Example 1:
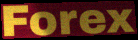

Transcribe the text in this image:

Forex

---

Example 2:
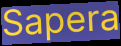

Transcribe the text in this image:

Sapera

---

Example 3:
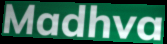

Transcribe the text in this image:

Madhva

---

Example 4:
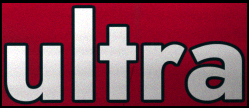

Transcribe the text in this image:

ultra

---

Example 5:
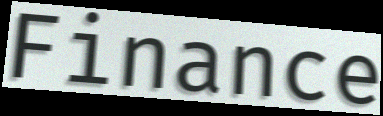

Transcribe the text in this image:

Finance